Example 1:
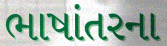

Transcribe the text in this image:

ભાષાંતરના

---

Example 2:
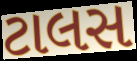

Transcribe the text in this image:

ટાલસ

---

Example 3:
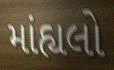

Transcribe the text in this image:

માંહ્યલો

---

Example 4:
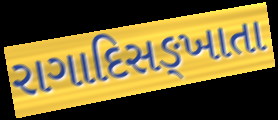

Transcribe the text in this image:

રાગાદિસઙ્ખાતા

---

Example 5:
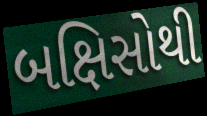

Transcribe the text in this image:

બક્ષિસોથી